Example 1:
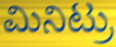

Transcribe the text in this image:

ಮಿನಿಟ್ರು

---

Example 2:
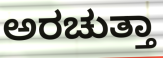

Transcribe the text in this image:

ಅರಚುತ್ತಾ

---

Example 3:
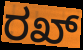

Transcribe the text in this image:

ರಖ್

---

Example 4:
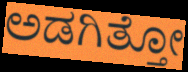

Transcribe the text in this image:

ಅಡಗಿತ್ತೋ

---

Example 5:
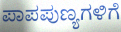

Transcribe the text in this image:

ಪಾಪಪುಣ್ಯಗಳಿಗೆ